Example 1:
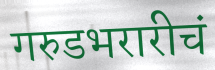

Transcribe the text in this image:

गरुडभरारीचं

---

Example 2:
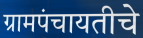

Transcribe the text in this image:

ग्रामपंचायतीचे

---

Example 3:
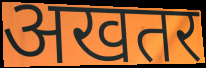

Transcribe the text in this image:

अखतर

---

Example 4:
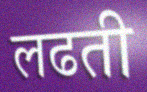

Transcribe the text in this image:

लढती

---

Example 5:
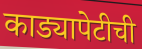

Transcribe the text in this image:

काड्यापेटीची